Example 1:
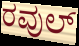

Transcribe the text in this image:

ರವುಲ್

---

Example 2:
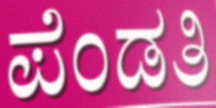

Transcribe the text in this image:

ಪೆಂಡತಿ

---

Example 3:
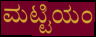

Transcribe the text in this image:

ಮಟ್ಟಿಯಂ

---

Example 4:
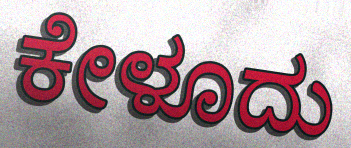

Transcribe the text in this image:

ಕೇಳೂದು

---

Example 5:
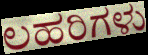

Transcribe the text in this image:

ಲಹರಿಗಳು